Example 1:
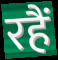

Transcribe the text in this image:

रहैं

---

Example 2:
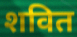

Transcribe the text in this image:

शवित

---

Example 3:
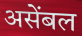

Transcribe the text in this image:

असेंबल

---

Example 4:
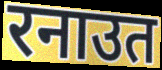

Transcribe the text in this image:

रनाउत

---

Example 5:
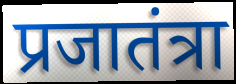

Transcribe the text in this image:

प्रजातंत्रा